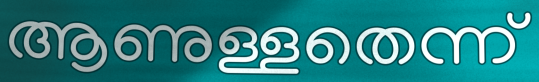
ആണുള്ളതെന്ന്